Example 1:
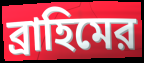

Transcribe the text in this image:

ব্রাহিমের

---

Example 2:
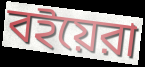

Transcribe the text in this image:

বইয়েরা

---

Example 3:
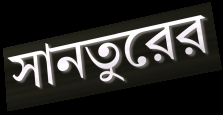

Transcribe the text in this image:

সানতুরের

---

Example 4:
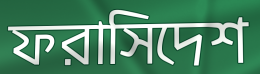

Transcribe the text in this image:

ফরাসিদেশ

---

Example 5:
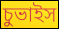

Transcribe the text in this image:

চুভাইস